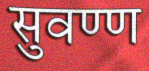
सुवण्ण